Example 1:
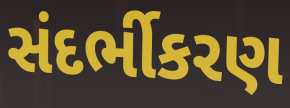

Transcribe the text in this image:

સંદર્ભીકરણ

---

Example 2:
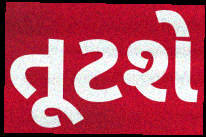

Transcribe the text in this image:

તૂટશે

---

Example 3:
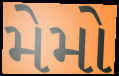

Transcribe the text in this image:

મેમો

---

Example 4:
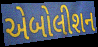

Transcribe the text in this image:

એબોલીશન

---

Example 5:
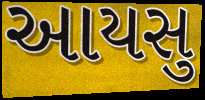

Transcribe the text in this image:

આયસુ